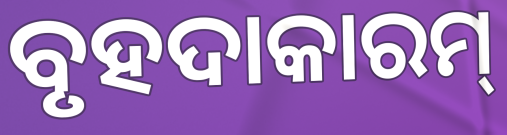
ବୃହଦାକାରମ୍